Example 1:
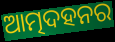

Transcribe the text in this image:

ଆତ୍ମଦହନର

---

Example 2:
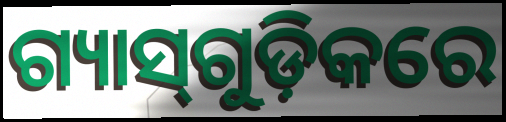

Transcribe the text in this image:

ଗ୍ୟାସ୍‌ଗୁଡ଼ିକରେ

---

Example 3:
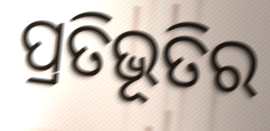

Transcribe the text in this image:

ପ୍ରତିଭୂତିର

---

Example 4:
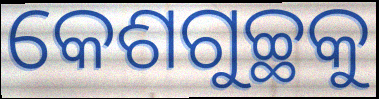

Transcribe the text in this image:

କେଶଗୁଚ୍ଛକୁ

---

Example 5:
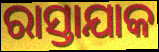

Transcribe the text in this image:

ରାସ୍ତାଯାକ